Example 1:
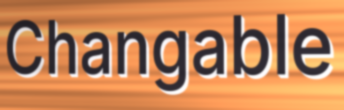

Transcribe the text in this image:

Changable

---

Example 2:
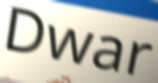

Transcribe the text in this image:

Dwar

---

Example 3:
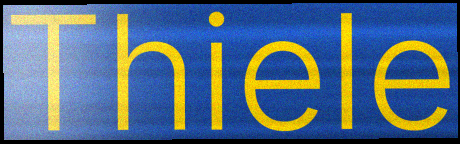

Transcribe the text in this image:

Thiele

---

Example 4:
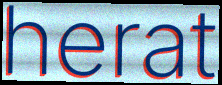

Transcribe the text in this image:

herat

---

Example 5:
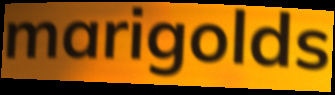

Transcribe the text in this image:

marigolds